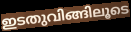
ഇടതുവിങ്ങിലൂടെ